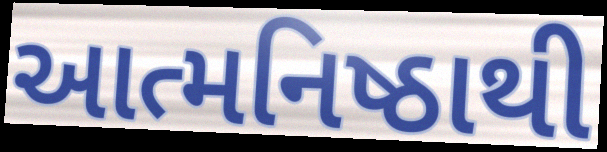
આત્મનિષ્ઠાથી